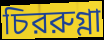
চিররুগ্না